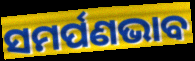
ସମର୍ପଣଭାବ